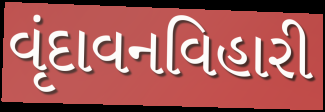
વૃંદાવનવિહારી